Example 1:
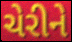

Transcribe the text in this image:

ચેરીને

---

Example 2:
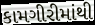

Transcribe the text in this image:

કામગીરીમાંથી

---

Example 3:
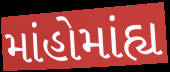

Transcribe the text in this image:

માંહોમાંહ્ય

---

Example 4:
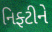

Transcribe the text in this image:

નિફ્ટીને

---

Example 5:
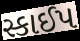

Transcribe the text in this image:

સ્કાઈપ